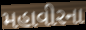
મહાવીરના